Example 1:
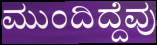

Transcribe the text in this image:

ಮುಂದಿದ್ದೆವು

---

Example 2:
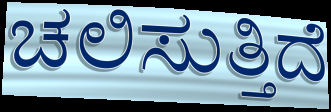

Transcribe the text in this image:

ಚಲಿಸುತ್ತಿದೆ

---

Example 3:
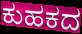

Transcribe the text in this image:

ಕುಹಕದ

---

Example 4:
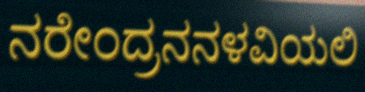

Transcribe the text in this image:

ನರೇಂದ್ರನನಳವಿಯಲಿ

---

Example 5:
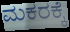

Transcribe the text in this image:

ಮಕರಕ್ಕೆ